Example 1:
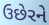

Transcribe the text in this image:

ઉછેરને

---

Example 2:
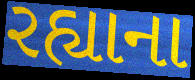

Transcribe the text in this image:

રહ્યાના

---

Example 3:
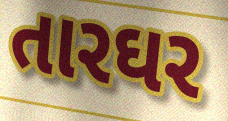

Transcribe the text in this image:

તારઘર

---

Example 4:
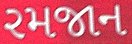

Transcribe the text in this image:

રમજાન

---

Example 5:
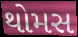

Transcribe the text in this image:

થોમસ